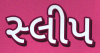
સ્લીપ